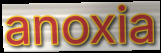
anoxia